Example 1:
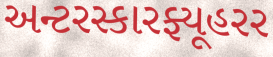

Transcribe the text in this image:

અન્ટરસ્કારફ્યૂહરર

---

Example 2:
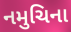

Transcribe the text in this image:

નમુચિના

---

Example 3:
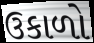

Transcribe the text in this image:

ઉકાળો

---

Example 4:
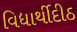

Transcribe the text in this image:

વિદ્યાર્થીદીઠ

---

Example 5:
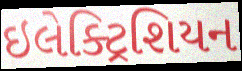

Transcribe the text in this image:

ઇલેક્ટ્રિશિયન